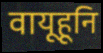
वायूहूनि